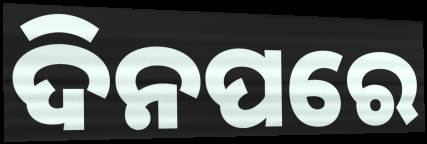
ଦିନପରେ